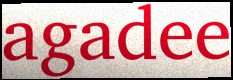
agadee